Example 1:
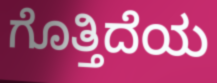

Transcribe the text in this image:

ಗೊತ್ತಿದೆಯ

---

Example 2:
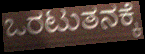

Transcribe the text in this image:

ಒರಟುತನಕ್ಕೆ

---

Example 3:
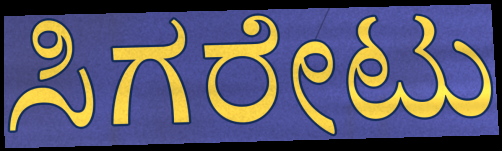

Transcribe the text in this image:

ಸಿಗರೇಟು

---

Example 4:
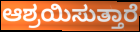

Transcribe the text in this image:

ಆಶ್ರಯಿಸುತ್ತಾರೆ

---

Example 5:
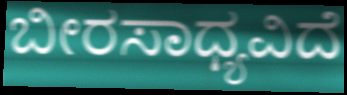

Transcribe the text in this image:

ಬೀರಸಾಧ್ಯವಿದೆ